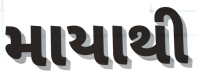
માયાથી